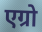
एग्रो